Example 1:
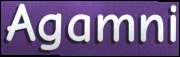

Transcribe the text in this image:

Agamni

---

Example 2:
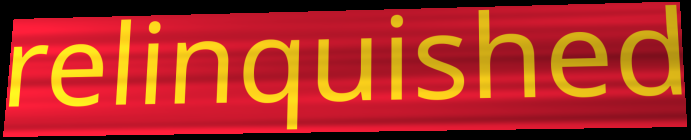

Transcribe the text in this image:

relinquished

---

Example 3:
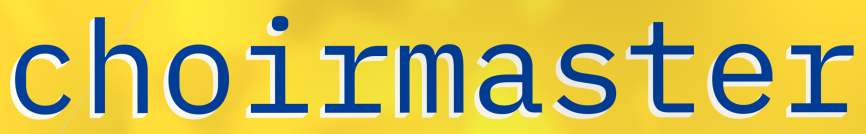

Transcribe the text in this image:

choirmaster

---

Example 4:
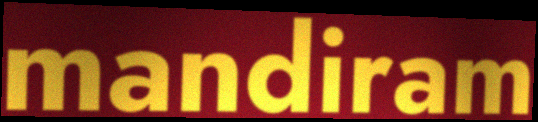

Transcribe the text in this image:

mandiram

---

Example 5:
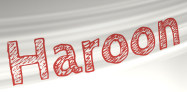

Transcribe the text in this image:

Haroon